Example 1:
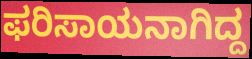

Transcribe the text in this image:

ಫರಿಸಾಯನಾಗಿದ್ದ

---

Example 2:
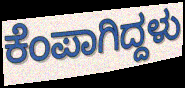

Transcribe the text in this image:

ಕೆಂಪಾಗಿದ್ದಳು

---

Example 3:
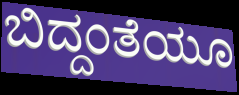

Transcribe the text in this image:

ಬಿದ್ದಂತೆಯೂ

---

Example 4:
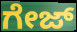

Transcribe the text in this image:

ಗೇಜ್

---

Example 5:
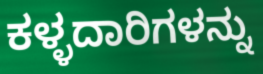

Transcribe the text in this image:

ಕಳ್ಳದಾರಿಗಳನ್ನು